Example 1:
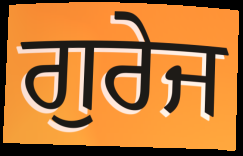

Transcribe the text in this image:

ਗੁਰੇਜ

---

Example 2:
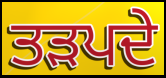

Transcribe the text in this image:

ਤੜਪਦੇ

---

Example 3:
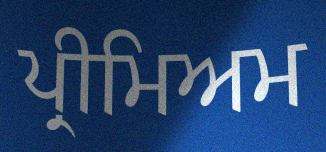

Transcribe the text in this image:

ਪ੍ਰੀਮਿਅਮ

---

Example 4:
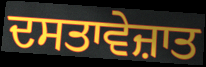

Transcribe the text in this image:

ਦਸਤਾਵੇਜ਼ਾਤ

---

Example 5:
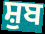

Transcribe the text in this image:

ਸ਼ੁਬ